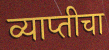
व्याप्तीचा